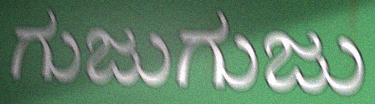
ಗುಜುಗುಜು